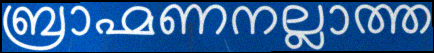
ബ്രാഹ്മണനല്ലാത്ത